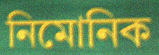
নিমোনিক